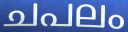
ചപലം